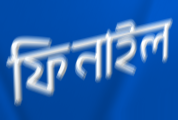
ফিনাইল